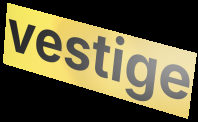
vestige